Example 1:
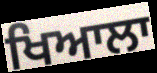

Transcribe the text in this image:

ਖਿਆਲਾ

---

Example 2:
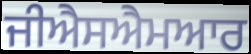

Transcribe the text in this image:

ਜੀਐਸਐਮਆਰ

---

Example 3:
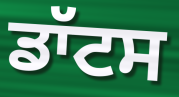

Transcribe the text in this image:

ਡਾੱਟਸ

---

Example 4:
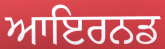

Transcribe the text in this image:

ਆਇਰਨਡ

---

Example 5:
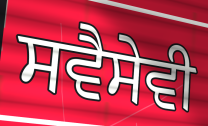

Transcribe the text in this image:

ਸਵੈਸੇਵੀ